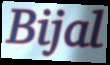
Bijal